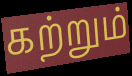
கற்றும்